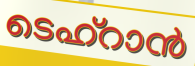
ടെഹ്റാൻ